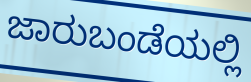
ಜಾರುಬಂಡೆಯಲ್ಲಿ